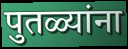
पुतळ्यांना